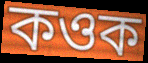
কওক